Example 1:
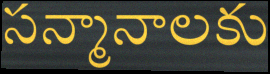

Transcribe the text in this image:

సన్మానాలకు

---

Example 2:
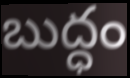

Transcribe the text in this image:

బుద్ధం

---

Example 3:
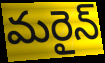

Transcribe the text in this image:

మరైన్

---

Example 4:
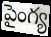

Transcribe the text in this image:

పైంగ్య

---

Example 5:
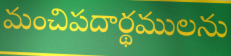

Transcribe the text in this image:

మంచిపదార్థములను